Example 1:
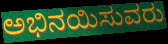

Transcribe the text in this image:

ಅಭಿನಯಿಸುವರು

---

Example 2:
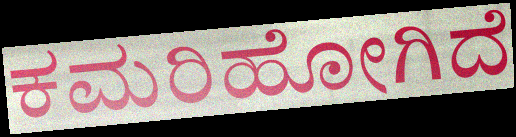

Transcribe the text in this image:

ಕಮರಿಹೋಗಿದೆ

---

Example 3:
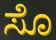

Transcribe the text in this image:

ಸೊ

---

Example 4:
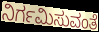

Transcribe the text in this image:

ನಿರ್ಗಮಿಸುವಂತೆ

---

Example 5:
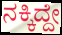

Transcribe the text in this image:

ನಕ್ಕಿದ್ದೇ